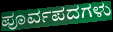
ಪೂರ್ವಪದಗಳು